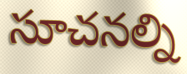
సూచనల్ని